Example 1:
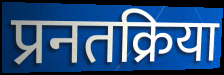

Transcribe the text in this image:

प्रनतक्रिया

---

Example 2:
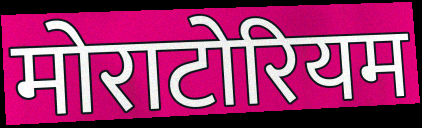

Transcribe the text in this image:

मोराटोरियम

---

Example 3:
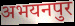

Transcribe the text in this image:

अभयनपुर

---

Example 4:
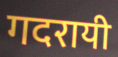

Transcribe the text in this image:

गदरायी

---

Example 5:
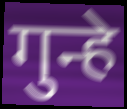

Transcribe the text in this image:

गुन्हे